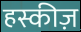
हस्कीज़